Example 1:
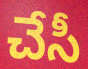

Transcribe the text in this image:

చేసీ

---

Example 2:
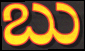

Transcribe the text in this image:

బు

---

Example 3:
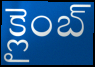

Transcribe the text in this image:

క్లైంబ్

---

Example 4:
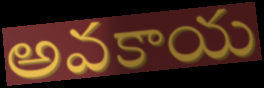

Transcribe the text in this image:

అవకాయ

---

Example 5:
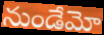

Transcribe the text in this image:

నుండేమో